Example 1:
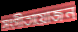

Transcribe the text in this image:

সংগীতায়োজন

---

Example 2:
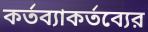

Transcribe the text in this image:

কর্তব্যাকর্তব্যের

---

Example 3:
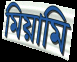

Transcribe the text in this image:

মিয়ামি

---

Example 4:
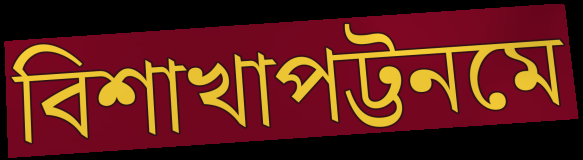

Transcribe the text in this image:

বিশাখাপট্টনমে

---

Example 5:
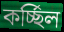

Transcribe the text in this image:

কর্চ্ছিল